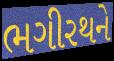
ભગીરથને